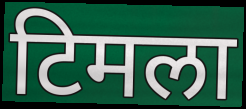
टिमला